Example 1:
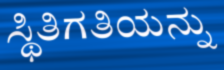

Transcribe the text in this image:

ಸ್ಥಿತಿಗತಿಯನ್ನು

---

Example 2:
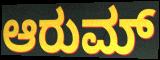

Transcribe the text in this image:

ಆರುಮ್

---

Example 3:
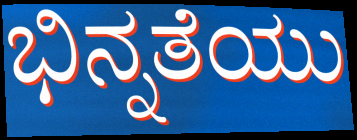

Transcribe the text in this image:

ಭಿನ್ನತೆಯು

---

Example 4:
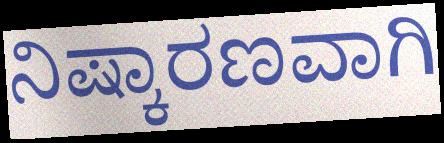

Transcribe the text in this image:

ನಿಷ್ಕಾರಣವಾಗಿ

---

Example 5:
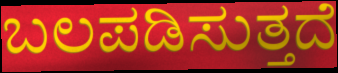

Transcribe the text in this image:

ಬಲಪಡಿಸುತ್ತದೆ